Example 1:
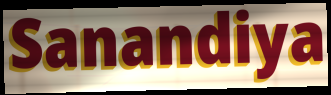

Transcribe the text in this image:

Sanandiya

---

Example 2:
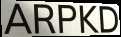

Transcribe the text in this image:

ARPKD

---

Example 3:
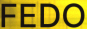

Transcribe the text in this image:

FEDO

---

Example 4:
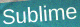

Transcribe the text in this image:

Sublime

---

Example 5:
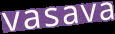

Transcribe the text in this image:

vasava